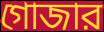
গোজার